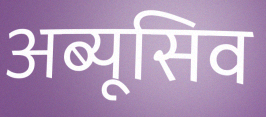
अब्यूसिव